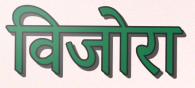
विजोरा